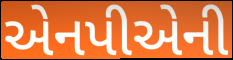
એનપીએની